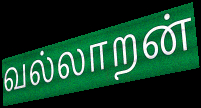
வல்லாறன்